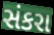
સંકરા